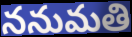
ననుమతి